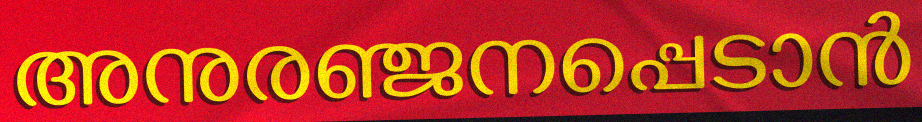
അനുരഞ്ജനപ്പെടാൻ